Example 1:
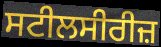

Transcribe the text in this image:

ਸਟੀਲਸੀਰੀਜ਼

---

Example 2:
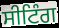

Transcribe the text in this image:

ਸੀਟਿੰਗ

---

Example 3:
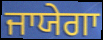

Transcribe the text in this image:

ਜਾਯੇਗਾ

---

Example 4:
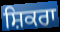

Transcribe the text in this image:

ਸ਼ਿਕਰਾ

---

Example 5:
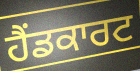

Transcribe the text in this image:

ਹੈਂਡਕਾਰਟ